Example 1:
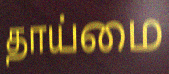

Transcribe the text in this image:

தாய்மை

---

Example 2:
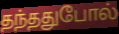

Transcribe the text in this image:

தந்ததுபோல்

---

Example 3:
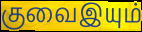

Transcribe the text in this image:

குவைஇயும்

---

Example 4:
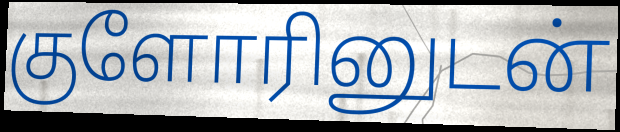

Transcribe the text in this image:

குளோரினுடன்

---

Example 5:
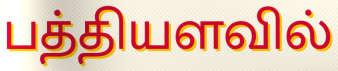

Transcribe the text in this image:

பத்தியளவில்